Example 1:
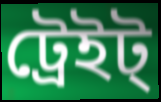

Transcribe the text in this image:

ট্রেইট্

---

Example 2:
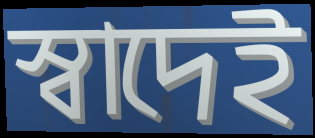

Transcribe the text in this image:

স্বাদেই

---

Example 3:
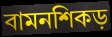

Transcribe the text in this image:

বামনশিকড়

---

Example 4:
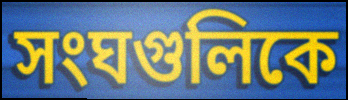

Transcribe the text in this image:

সংঘগুলিকে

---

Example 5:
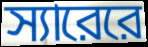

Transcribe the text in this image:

স্যারেরে